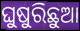
ଘୁଷୁରିଛୁଆ